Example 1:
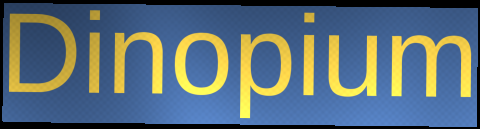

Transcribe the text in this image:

Dinopium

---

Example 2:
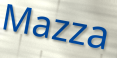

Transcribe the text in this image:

Mazza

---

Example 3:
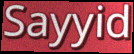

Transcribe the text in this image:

Sayyid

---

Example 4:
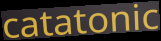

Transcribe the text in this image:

catatonic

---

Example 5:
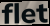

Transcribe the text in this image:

flet